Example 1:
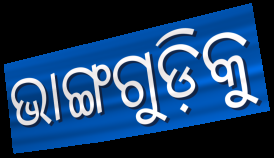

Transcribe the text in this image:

ଭାଙ୍ଗଗୁଡ଼ିକୁ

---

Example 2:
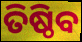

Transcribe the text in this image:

ତିଷ୍ଠିବ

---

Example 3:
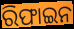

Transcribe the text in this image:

ରିଫାଇନ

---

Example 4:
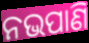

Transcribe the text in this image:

ନଭପାଣି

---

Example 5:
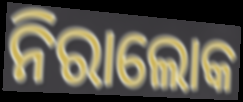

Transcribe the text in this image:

ନିରାଲୋକ